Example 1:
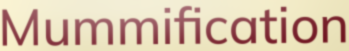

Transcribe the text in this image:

Mummification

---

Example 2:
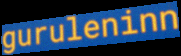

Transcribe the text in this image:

guruleninn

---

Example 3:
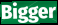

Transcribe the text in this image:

Bigger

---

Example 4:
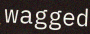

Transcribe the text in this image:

wagged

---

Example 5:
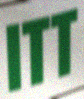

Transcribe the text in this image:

ITT